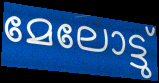
മേലോട്ടു്